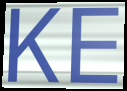
KE